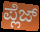
ಪ್ಲೆಜ್